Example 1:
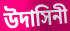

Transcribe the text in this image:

উদাসিনী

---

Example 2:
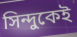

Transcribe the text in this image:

সিন্দুকেই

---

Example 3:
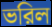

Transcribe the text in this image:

ভরিল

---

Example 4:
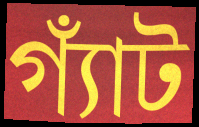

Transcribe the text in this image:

গ্যাঁট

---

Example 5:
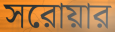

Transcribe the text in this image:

সরোয়ার